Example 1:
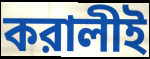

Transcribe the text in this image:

করালীই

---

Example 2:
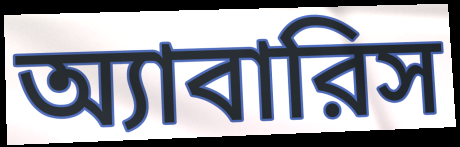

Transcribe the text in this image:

অ্যাবারিস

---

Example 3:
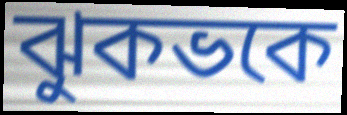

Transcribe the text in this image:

ঝুকভকে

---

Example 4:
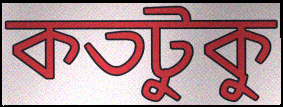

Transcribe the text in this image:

কতটুকু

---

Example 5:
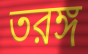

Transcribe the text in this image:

তরঙ্গ